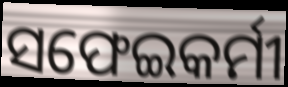
ସଫେଇକର୍ମୀ